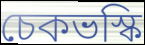
চেকভস্কি